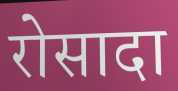
रोसादा